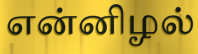
என்னிழல்